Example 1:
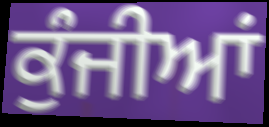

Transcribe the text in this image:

ਕੁੰਜੀਆਂ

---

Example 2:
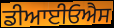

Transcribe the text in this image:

ਡੀਆਈਓਐਸ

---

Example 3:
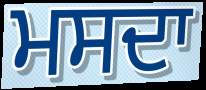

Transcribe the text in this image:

ਮਸਦਾ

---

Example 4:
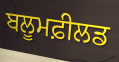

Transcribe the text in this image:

ਬਲੂਮਫ਼ੀਲਡ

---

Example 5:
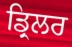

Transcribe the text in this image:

ਡ੍ਰਿਲਰ